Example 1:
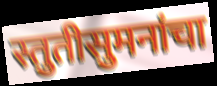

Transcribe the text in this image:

स्तुतीसुमनांचा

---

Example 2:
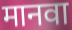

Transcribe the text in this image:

मानवा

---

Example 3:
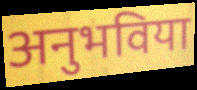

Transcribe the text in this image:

अनुभविया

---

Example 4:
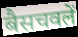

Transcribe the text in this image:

बैसचवलें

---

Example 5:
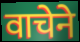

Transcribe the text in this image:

वाचेने